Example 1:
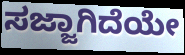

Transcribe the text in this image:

ಸಜ್ಜಾಗಿದೆಯೇ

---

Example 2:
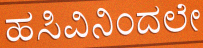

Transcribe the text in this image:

ಹಸಿವಿನಿಂದಲೇ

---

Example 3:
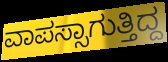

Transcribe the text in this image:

ವಾಪಸ್ಸಾಗುತ್ತಿದ್ದ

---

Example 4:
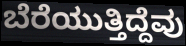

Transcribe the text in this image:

ಬೆರೆಯುತ್ತಿದ್ದೆವು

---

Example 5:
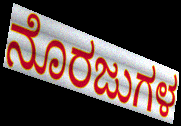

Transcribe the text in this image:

ನೊರಜುಗಳ